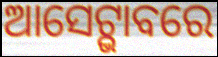
ଆସେଟ୍ଭାବରେ